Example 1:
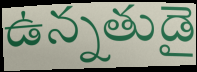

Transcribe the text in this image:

ఉన్నతుడై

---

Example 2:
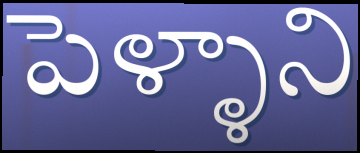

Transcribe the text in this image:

పెళ్ళాని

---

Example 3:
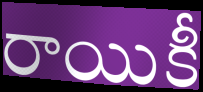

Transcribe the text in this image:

రాయికీ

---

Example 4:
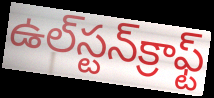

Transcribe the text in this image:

ఉల్‌స్టన్‌క్రాఫ్ట్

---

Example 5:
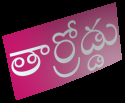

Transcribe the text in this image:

తార్రోడ్డు